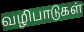
வழிபாடுகள்